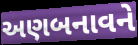
અણબનાવને